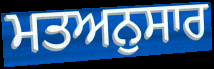
ਮਤਅਨੁਸਾਰ